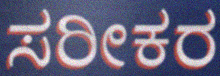
ಸರೀಕರ